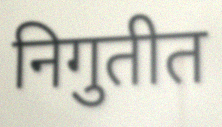
निगुतीत